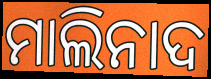
ମାଲିନାଦ